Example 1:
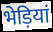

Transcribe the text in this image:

भेड़ियां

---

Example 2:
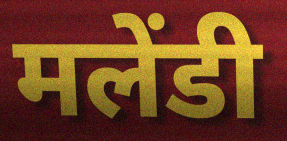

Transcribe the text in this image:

मलेंडी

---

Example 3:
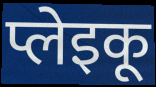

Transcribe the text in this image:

प्लेइकू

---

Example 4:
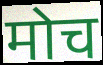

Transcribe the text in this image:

मोच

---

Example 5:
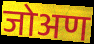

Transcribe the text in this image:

जोअण